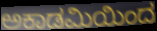
ಅಕಾಡಮಿಯಿಂದ